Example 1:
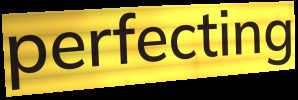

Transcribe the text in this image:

perfecting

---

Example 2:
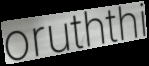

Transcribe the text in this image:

oruththi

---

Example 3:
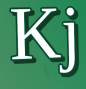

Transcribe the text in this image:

Kj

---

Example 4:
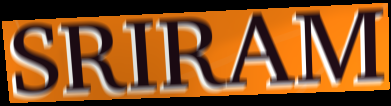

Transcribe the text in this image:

SRIRAM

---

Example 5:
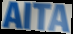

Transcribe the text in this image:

AITA